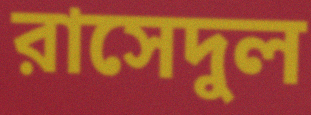
রাসেদুল